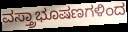
ವಸ್ತ್ರಾಭೂಷಣಗಳಿಂದ